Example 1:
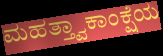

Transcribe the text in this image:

ಮಹತ್ತ್ವಾಕಾಂಕ್ಷೆಯ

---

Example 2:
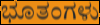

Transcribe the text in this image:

ಭೂತಂಗಳು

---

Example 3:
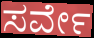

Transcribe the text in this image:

ಸರ್ವೇ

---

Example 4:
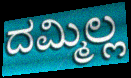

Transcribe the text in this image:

ದಮ್ಮಿಲ್ಲ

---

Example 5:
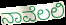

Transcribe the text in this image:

ನಾವೆಲಲಿ